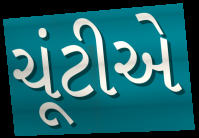
ચૂંટીએ